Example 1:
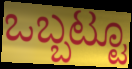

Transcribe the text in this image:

ಒಬ್ಬಟ್ಟೂ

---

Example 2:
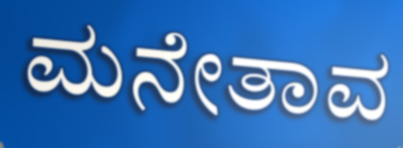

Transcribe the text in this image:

ಮನೇತಾವ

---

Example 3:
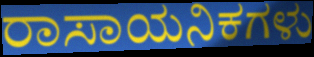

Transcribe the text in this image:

ರಾಸಾಯನಿಕಗಳು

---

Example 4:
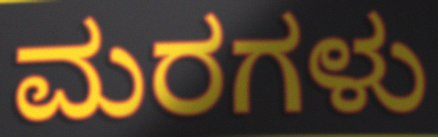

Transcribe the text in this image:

ಮರಗಳು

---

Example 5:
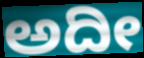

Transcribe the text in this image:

ಅದೀ